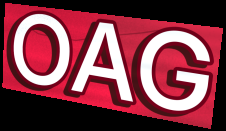
OAG